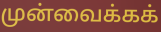
முன்வைக்கக்